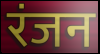
रंजन